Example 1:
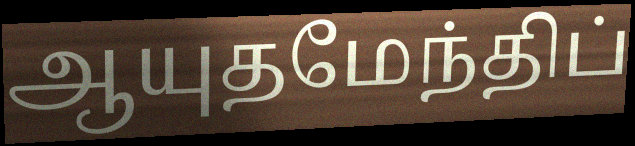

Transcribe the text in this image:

ஆயுதமேந்திப்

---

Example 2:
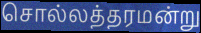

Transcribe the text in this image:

சொல்லத்தரமன்று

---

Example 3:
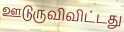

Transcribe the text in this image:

ஊடுருவிவிட்டது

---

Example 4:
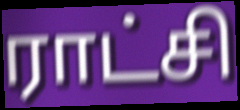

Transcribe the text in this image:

ராட்சி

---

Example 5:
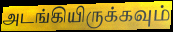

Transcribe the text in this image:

அடங்கியிருக்கவும்